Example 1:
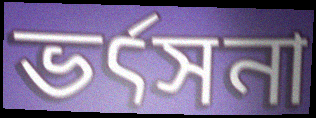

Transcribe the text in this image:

ভর্ৎসনা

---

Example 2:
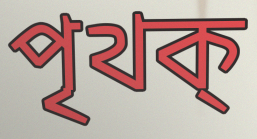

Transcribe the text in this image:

পৃথক্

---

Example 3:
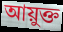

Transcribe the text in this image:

আয়ুক্ত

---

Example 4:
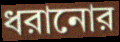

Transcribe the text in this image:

ধরানোর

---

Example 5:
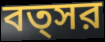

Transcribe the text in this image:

বত্সর